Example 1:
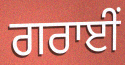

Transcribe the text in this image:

ਗਰਾਈਂ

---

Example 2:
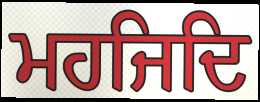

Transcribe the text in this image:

ਮਹਜਿਦਿ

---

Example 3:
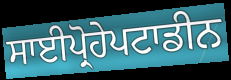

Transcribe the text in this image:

ਸਾਈਪ੍ਰੋਹੇਪਟਾਡੀਨ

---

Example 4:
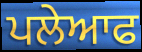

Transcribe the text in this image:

ਪਲੇਆਫ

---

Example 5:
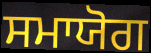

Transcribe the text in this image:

ਸਮਾਯੋਗ